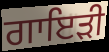
ਗਾਇੜੀ